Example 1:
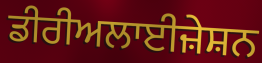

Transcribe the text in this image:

ਡੀਰੀਅਲਾਈਜ਼ੇਸ਼ਨ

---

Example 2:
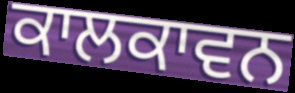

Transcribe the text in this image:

ਕਾਲਕਾਵਨ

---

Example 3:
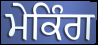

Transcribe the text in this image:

ਮੇਕਿੰਗ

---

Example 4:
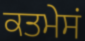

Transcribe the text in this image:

ਕਤਮੇਸਂ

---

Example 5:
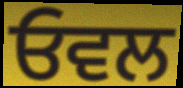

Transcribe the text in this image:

ਓਵਲ